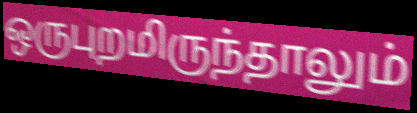
ஒருபுறமிருந்தாலும்